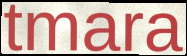
tmara